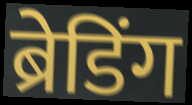
ब्रेडिंग